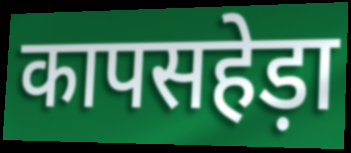
कापसहेड़ा